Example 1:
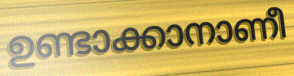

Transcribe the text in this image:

ഉണ്ടാക്കാനാണീ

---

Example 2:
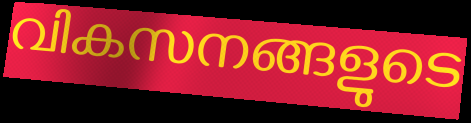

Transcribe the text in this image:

വികസനങ്ങളുടെ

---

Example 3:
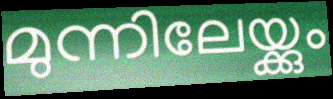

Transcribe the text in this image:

മുന്നിലേയ്ക്കും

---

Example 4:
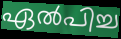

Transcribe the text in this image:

ഏൽപിച്ച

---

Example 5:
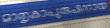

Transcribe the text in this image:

മാതൃകാപുരുഷനായ